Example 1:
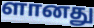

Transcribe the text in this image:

ளானது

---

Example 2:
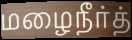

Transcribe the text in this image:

மழைநீர்த்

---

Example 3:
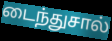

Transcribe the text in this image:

டைந்துசால்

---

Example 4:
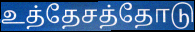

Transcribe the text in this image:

உத்தேசத்தோடு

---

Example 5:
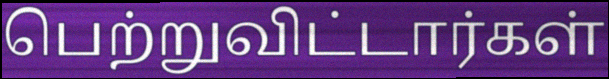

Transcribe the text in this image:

பெற்றுவிட்டார்கள்